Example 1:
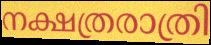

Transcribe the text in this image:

നക്ഷത്രരാത്രി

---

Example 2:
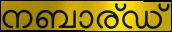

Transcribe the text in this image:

നബാര്ഡ്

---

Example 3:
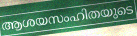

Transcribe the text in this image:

ആശയസംഹിതയുടെ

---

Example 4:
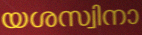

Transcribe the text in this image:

യശസ്വിനാ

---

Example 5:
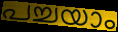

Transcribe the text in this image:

പച്ചയാം